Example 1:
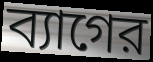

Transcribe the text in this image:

ব্যাগের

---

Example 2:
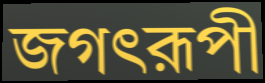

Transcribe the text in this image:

জগৎরূপী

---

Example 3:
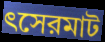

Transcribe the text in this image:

ৎসেরমাট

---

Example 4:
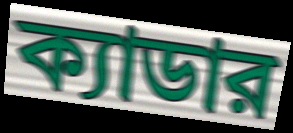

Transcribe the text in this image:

ক্যাডার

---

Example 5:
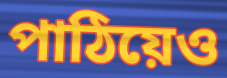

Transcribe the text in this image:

পাঠিয়েও